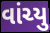
વાંચ્યુ